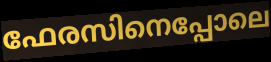
ഫേരസിനെപ്പോലെ